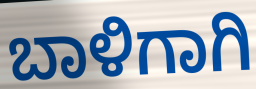
ಬಾಳಿಗಾಗಿ